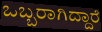
ಒಬ್ಬರಾಗಿದ್ದಾರೆ